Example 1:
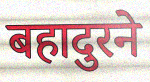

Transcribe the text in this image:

बहादुरने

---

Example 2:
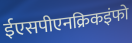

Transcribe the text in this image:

ईएसपीएनक्रिकइंफो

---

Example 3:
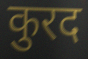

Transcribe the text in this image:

कुरद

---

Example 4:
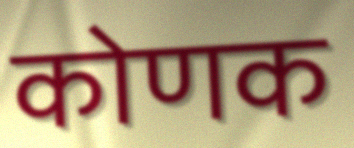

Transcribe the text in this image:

कोणक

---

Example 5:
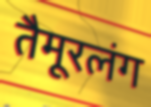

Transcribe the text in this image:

तैमूरलंग